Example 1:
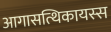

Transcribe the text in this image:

आगासत्थिकायस्स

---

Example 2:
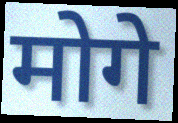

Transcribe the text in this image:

मोगे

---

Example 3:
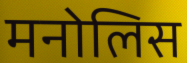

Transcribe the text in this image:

मनोलिस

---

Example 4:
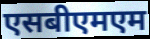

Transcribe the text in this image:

एसबीएमएम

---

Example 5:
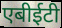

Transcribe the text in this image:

एबीईटी